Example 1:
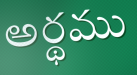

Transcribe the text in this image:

అర్థము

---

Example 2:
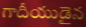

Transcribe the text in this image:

గాదీయుడైన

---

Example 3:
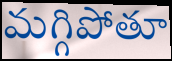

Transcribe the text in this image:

మగ్గిపోతూ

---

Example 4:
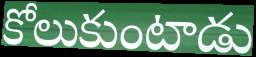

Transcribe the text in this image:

కోలుకుంటాడు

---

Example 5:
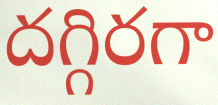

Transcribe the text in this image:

దగ్గిరగా